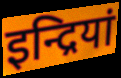
इन्द्रियां